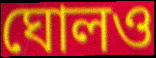
ঘোলও